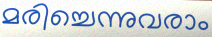
മരിച്ചെന്നുവരാം